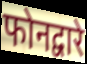
फोनद्वारे